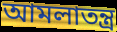
আমলাতন্ত্র